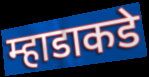
म्हाडाकडे